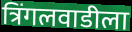
त्रिंगलवाडीला